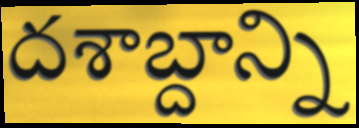
దశాబ్దాన్ని